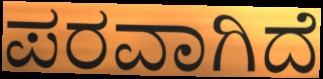
ಪರವಾಗಿದೆ